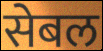
सेबल